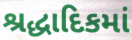
શ્રદ્ધાદિકમાં